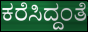
ಕರೆಸಿದ್ದಂತೆ